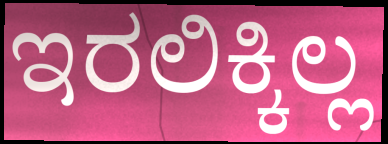
ಇರಲಿಕ್ಕಿಲ್ಲ